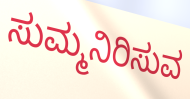
ಸುಮ್ಮನಿರಿಸುವ